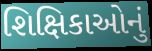
શિક્ષિકાઓનું